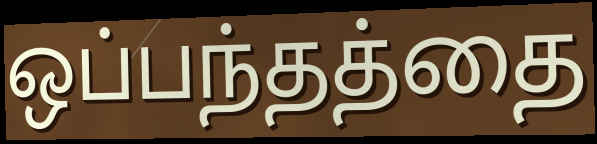
ஒப்பந்தத்தை